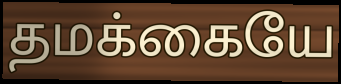
தமக்கையே